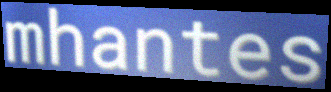
mhantes